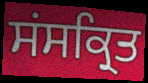
ਸਂਸਕ੍ਰਿਤ